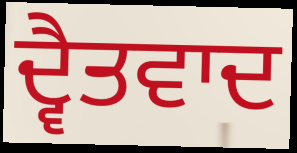
ਦ੍ਵੈਤਵਾਦ